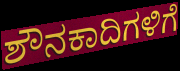
ಶೌನಕಾದಿಗಳಿಗೆ